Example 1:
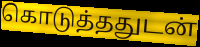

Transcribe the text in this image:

கொடுத்ததுடன்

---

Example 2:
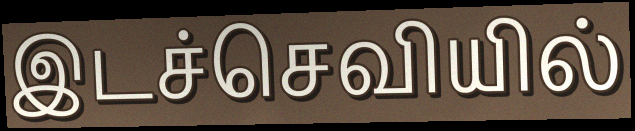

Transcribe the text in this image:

இடச்செவியில்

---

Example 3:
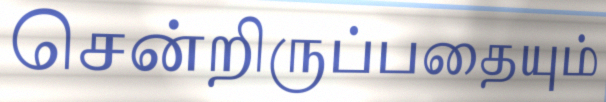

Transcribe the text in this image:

சென்றிருப்பதையும்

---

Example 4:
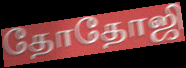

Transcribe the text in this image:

தோதோஜி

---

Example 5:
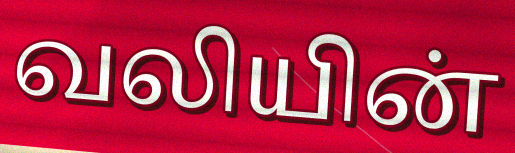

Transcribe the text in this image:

வலியின்